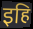
इहि